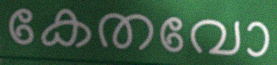
കേതവോ